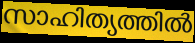
സാഹിത്യത്തിൽ